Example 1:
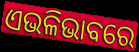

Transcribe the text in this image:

ଏଭଳିଭାବରେ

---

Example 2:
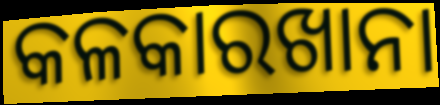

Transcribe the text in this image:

କଳକାରଖାନା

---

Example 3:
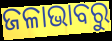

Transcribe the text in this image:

ଜଳାଭାବରୁ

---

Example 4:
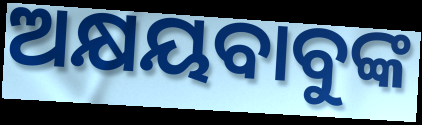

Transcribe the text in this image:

ଅକ୍ଷୟବାବୁଙ୍କ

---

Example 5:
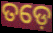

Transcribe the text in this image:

ତଡ଼େ